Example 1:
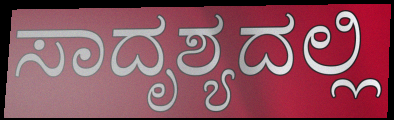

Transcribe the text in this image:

ಸಾದೃಶ್ಯದಲ್ಲಿ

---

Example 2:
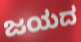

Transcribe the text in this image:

ಜಯದ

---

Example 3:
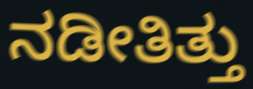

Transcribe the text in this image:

ನಡೀತಿತ್ತು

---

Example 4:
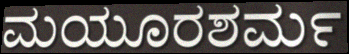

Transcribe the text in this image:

ಮಯೂರಶರ್ಮ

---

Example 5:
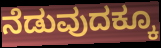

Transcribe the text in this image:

ನೆಡುವುದಕ್ಕೂ